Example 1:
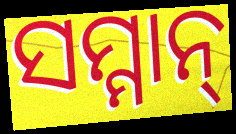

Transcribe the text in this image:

ସମ୍ମାନ୍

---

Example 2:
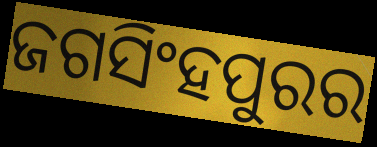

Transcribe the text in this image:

ଜଗସିଂହପୁରର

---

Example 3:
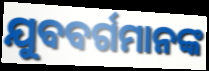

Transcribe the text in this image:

ଯୁବବର୍ଗମାନଙ୍କ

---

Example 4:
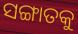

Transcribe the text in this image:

ସଙ୍ଗାତକୁ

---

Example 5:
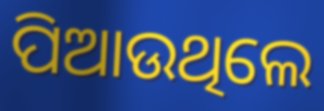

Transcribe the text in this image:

ପିଆଉଥିଲେ